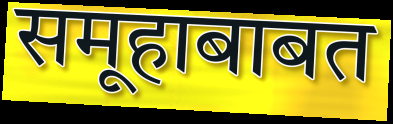
समूहाबाबत